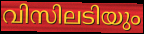
വിസിലടിയും